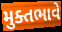
મુક્તભાવે